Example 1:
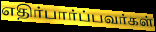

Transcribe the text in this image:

எதிர்பார்ப்பவர்கள்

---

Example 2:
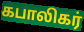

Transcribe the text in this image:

கபாலிகர்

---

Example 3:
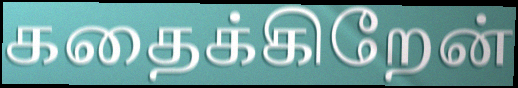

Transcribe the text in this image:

கதைக்கிறேன்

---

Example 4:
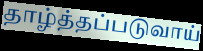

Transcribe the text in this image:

தாழ்த்தப்படுவாய்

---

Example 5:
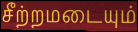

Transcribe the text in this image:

சீற்றமடையும்